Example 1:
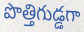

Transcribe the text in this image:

పొత్తిగుడ్డగా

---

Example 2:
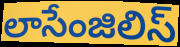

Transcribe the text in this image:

లాసేంజిలిస్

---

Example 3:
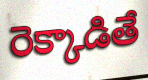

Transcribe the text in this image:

రెక్కాడితే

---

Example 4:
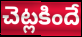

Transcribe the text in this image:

చెట్లకిందే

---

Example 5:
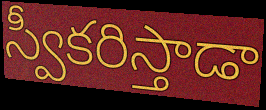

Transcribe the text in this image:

స్వీకరిస్తాడా